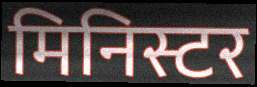
मिनिस्टर